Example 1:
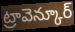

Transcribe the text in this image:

ట్రావెన్కూర్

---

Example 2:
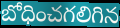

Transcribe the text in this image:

బోధించగలిగిన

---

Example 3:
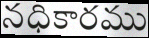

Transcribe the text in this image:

నధికారము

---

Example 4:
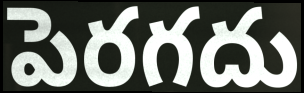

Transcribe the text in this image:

పెరగదు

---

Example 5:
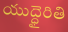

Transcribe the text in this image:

యుద్ధైరితి